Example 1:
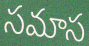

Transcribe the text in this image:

సమాస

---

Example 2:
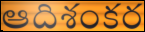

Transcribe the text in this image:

ఆదిశంకర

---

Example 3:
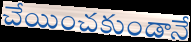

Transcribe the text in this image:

చేయించకుండానే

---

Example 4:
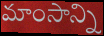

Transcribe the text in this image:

మాంసాన్ని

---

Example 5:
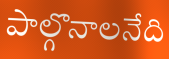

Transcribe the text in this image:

పాల్గొనాలనేది